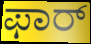
ಫಾರ್